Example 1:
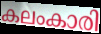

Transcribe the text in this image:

കലംകാരി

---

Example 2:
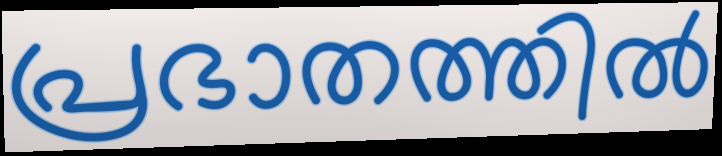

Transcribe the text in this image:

പ്രഭാതത്തിൽ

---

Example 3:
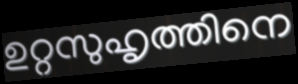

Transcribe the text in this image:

ഉറ്റസുഹൃത്തിനെ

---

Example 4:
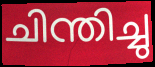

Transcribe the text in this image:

ചിന്തിച്ചു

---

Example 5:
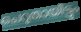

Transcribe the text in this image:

ചെറുതായിട്ടും